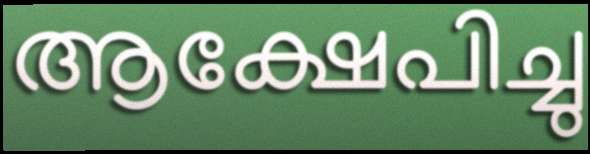
ആക്ഷേപിച്ചു